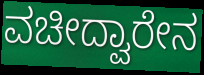
ವಚೀದ್ವಾರೇನ